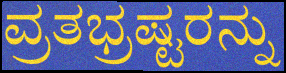
ವ್ರತಭ್ರಷ್ಟರನ್ನು